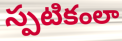
స్పటికంలా